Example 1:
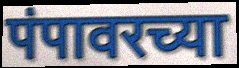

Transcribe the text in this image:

पंपावरच्या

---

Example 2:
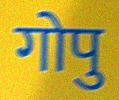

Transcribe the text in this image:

गोपु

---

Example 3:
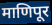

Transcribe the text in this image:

माणिपूर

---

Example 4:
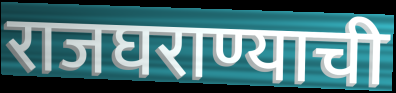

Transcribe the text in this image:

राजघराण्याची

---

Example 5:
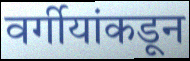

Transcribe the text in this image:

वर्गीयांकडून